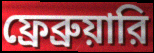
ফ্রেব্রুয়ারি